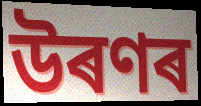
উৰণৰ